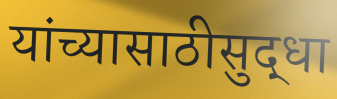
यांच्यासाठीसुद्धा